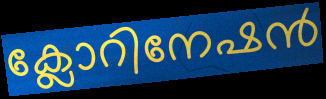
ക്ലോറിനേഷൻ